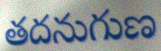
తదనుగుణ